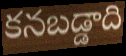
కనబడ్డాది